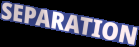
SEPARATION